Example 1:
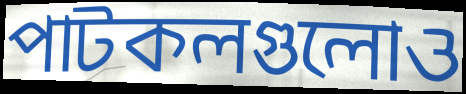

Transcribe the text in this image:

পাটকলগুলোও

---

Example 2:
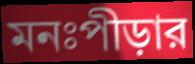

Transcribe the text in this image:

মনঃপীড়ার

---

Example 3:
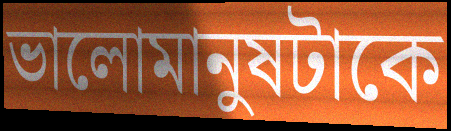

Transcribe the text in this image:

ভালোমানুষটাকে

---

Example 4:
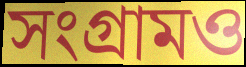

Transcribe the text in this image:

সংগ্রামও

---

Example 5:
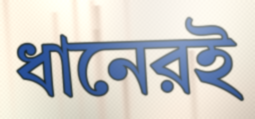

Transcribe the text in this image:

ধানেরই